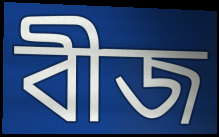
বীজ